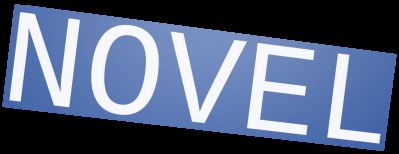
NOVEL